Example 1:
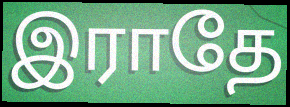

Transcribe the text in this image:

இராதே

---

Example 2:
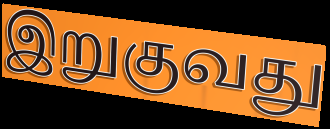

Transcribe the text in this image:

இறுகுவது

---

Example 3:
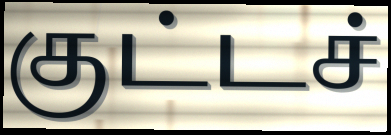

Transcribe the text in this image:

குட்டச்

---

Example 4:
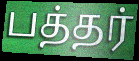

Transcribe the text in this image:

பத்தர்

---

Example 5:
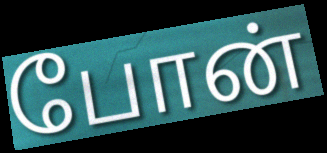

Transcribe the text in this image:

போன்